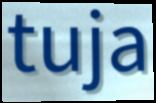
tuja